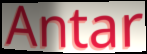
Antar